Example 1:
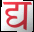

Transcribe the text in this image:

द्य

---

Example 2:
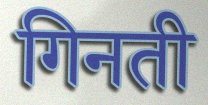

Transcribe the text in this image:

गिनती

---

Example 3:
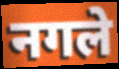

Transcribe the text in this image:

नगले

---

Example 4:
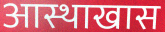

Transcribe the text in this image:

आस्थाखास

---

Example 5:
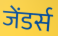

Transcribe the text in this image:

जेंडर्स